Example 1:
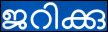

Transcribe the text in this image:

ജറിക്കു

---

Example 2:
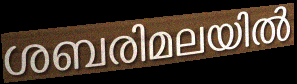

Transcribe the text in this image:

ശബരിമലയിൽ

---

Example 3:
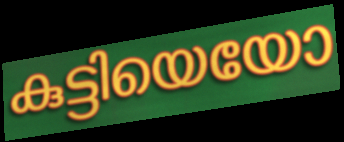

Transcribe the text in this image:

കുട്ടിയെയോ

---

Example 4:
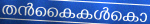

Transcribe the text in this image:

തൻകൈകൾകൊ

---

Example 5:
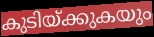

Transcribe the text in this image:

കുടിയ്ക്കുകയും